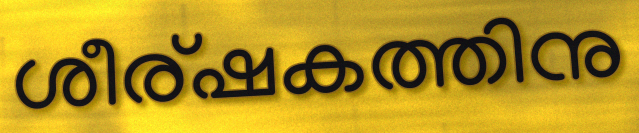
ശീര്ഷകത്തിനു